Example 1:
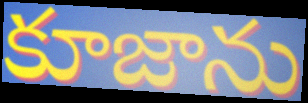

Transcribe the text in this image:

కూజాను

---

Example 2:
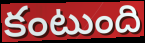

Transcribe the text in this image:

కంటుంది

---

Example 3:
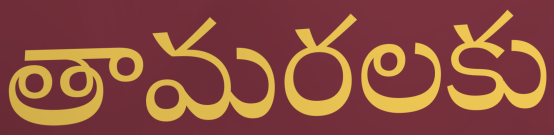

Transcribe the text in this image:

తామరలకు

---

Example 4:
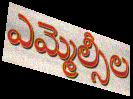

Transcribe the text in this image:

ఎమ్మెల్సీల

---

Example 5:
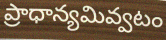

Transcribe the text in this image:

ప్రాధాన్యమివ్వటం